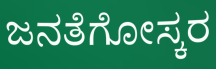
ಜನತೆಗೋಸ್ಕರ